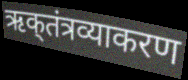
ऋक्‌तंत्रव्याकरण